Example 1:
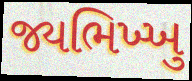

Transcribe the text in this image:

જ્યભિખ્ખુ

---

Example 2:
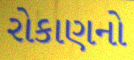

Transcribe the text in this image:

રોકાણનો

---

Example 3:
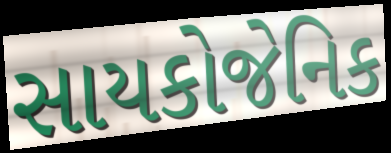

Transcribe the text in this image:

સાયકોજેનિક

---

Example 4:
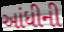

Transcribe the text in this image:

આંધીની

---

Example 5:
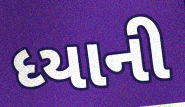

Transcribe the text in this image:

ધ્યાની